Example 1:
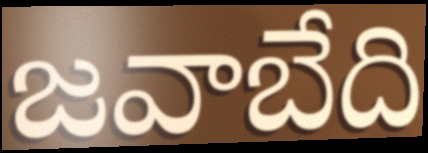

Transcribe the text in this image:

జవాబేది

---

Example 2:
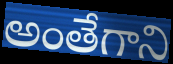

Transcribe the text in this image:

అంతేగాని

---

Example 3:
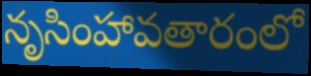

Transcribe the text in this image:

నృసింహావతారంలో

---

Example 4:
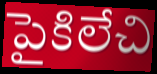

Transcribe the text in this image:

పైకిలేచి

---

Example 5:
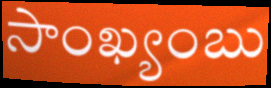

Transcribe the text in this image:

సాంఖ్యంబు